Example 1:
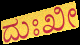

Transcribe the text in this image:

ದುಃಖೀ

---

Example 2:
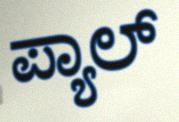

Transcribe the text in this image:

ಪ್ಯಾಲ್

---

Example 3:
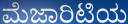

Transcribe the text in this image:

ಮೆಜಾರಿಟಿಯ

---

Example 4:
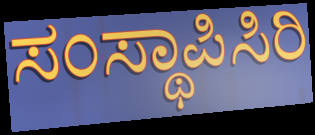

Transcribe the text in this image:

ಸಂಸ್ಥಾಪಿಸಿರಿ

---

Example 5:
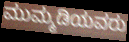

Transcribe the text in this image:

ಮುಮ್ಮಡಿಯವರು